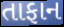
તાફાન